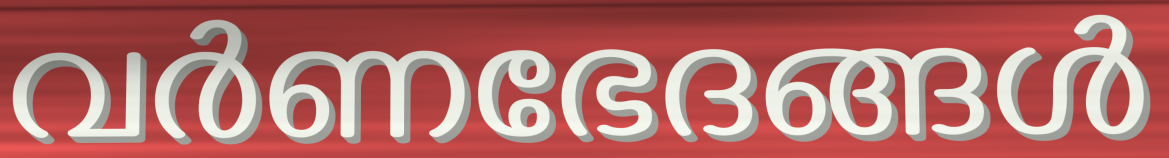
വർണഭേദങ്ങൾ